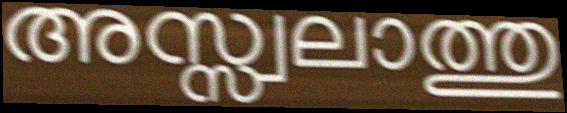
അസ്സ്വലാത്തു